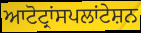
ਆਟੋਟ੍ਰਾਂਸਪਲਾਂਟੇਸ਼ਨ